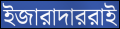
ইজারাদাররাই